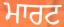
ਮਾਰਟ